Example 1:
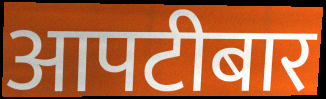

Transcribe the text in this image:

आपटीबार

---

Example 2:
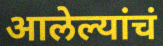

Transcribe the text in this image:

आलेल्यांचं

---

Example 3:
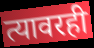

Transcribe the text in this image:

त्यावरही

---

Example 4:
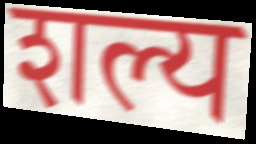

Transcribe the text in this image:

शल्‍य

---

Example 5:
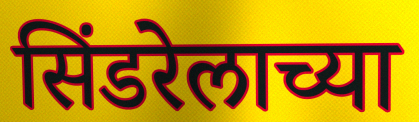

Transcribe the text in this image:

सिंडरेलाच्या